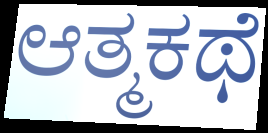
ಆತ್ಮಕಥೆ